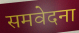
समवेदना